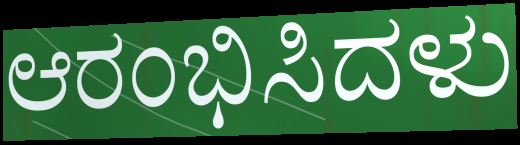
ಆರಂಭಿಸಿದಳು